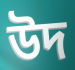
উদ